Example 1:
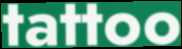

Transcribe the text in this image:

tattoo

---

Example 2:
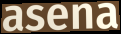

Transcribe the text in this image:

asena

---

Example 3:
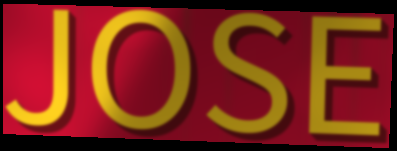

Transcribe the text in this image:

JOSE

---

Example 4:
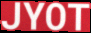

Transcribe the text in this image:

JYOT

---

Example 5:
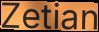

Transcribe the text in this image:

Zetian